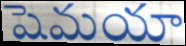
షెమయా